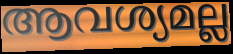
ആവശ്യമല്ല